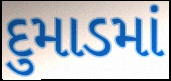
દુમાડમાં